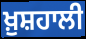
ਖ਼ੁਸ਼ਹਾਲੀ